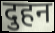
दुहन